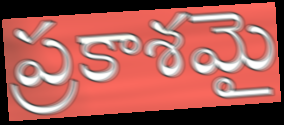
ప్రకాశమై